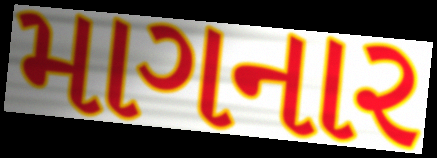
માગનાર